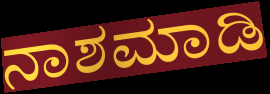
ನಾಶಮಾಡಿ